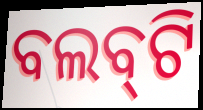
ବଲବ୍‌ଟି